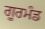
ਗੂਰਮੰਡ